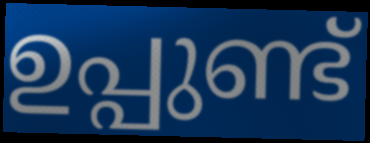
ഉപ്പുണ്ട്